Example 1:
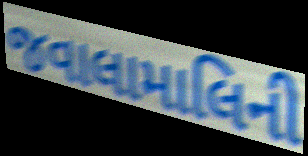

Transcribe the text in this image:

જવાલામાલિની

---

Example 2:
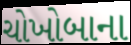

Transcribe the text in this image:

ચોખોબાના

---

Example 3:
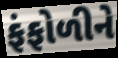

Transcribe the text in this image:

ફંફોળીને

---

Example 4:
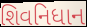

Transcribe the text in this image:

શિવનિધાન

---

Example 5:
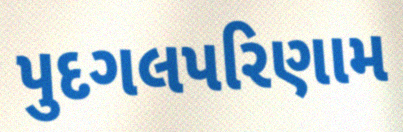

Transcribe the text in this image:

પુદગલપરિણામ